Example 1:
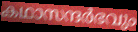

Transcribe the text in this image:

കഥാസന്ദർഭവും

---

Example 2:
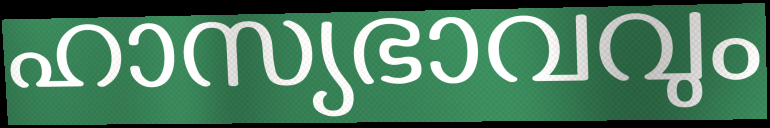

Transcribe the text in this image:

ഹാസ്യഭാവവും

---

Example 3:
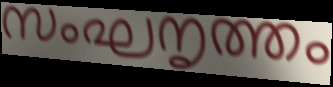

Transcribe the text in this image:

സംഘനൃത്തം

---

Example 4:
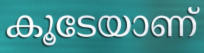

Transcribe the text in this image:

കൂടേയാണ്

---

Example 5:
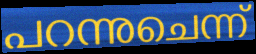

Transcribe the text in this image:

പറന്നുചെന്ന്